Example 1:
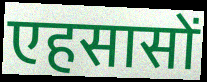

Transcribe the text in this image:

एहसासों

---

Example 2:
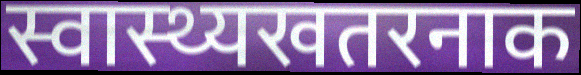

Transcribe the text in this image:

स्वास्थ्यखतरनाक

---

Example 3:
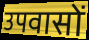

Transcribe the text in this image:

उपवासों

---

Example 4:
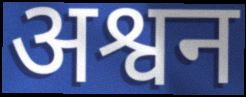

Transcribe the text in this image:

अश्वन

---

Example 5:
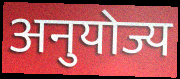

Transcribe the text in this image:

अनुयोज्य